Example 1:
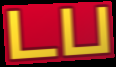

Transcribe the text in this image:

டப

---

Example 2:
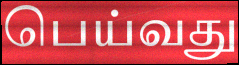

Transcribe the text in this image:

பெய்வது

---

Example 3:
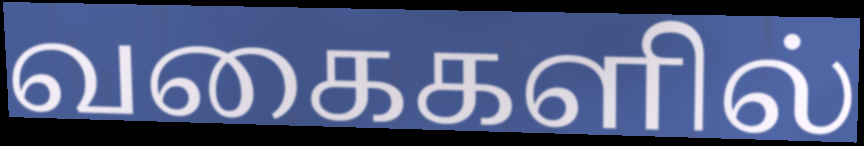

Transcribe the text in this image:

வகைகளில்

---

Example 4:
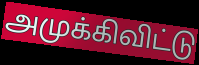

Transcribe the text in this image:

அமுக்கிவிட்டு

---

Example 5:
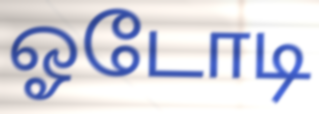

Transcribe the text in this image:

ஓடோடி